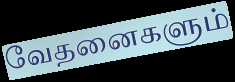
வேதனைகளும்